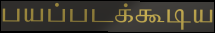
பயப்படக்கூடிய